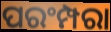
ପରଂମ୍ପରା